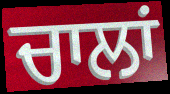
ਚਾਲਾਂ